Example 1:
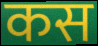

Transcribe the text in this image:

कस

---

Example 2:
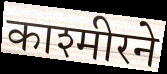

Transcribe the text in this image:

काश्मीरने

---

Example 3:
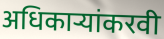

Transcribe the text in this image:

अधिकाऱ्यांकरवी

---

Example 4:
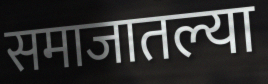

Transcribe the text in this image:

समाजातल्या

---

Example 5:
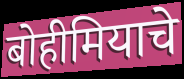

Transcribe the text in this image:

बोहीमियाचे